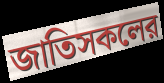
জাতিসকলের